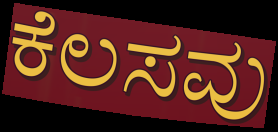
ಕೆಲಸವು